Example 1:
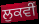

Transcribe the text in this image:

ਲੁਕਵੀਂ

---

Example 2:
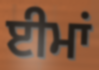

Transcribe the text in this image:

ਈਮਾਂ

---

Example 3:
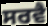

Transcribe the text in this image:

ਸਰਵੈ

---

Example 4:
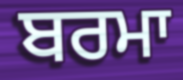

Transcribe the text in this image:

ਬਰਮਾ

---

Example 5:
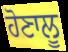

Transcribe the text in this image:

ਹੋਣਾਲੂ